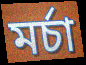
মৰ্চা